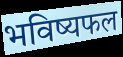
भविष्‍यफल